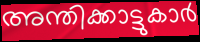
അന്തിക്കാട്ടുകാർ